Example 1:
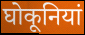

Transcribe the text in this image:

घोकूनियां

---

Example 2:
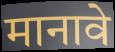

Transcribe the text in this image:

मानावे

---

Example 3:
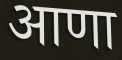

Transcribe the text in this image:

आणा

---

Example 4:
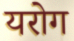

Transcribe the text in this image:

यरोग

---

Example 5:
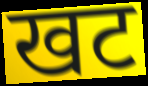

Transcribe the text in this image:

खट